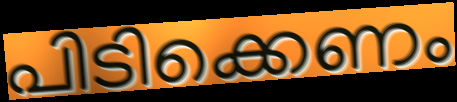
പിടിക്കെണം